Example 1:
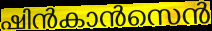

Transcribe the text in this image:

ഷിൻകാൻസെൻ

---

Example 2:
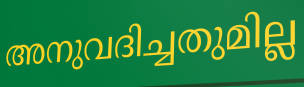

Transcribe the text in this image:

അനുവദിച്ചതുമില്ല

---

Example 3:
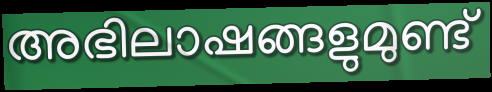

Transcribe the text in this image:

അഭിലാഷങ്ങളുമുണ്ട്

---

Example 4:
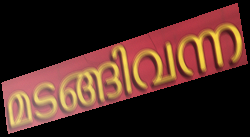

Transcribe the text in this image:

മടങ്ങിവന്ന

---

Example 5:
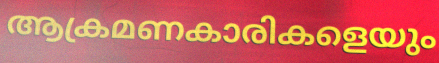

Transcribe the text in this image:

ആക്രമണകാരികളെയും